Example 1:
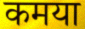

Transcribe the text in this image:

कमया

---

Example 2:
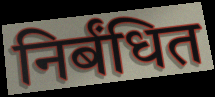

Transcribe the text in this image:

निर्बंधित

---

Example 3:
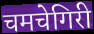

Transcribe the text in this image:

चमचेगिरी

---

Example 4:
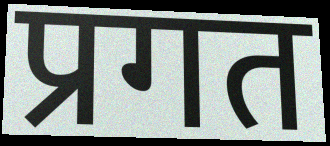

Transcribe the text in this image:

प्रगत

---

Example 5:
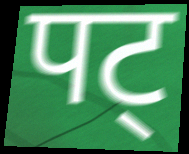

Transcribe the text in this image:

पट्